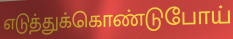
எடுத்துக்கொண்டுபோய்